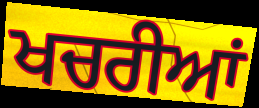
ਖਚਰੀਆਂ